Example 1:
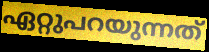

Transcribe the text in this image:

ഏറ്റുപറയുന്നത്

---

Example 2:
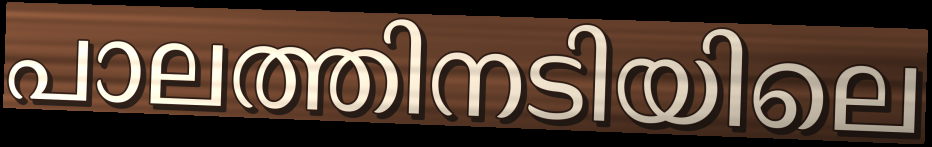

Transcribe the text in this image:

പാലത്തിനടിയിലെ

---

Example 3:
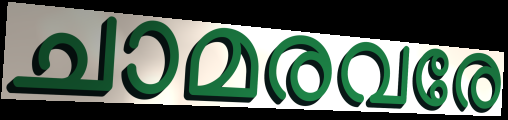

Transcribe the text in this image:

ചാമരവരേ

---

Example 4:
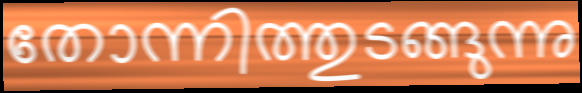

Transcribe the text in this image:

തോന്നിത്തുടങ്ങുന്നു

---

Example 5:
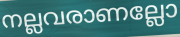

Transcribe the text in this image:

നല്ലവരാണല്ലോ